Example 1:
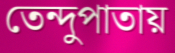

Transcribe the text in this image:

তেন্দুপাতায়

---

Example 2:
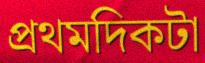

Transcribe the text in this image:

প্রথমদিকটা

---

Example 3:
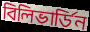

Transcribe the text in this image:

বিলিভার্ডিন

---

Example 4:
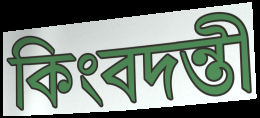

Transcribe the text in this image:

কিংবদন্তী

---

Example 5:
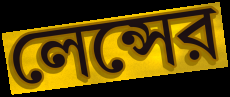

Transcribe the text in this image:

লেন্সের